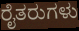
ರೈತರುಗಳು